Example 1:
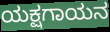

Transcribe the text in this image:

ಯಕ್ಷಗಾಯನ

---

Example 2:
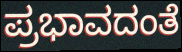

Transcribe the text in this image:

ಪ್ರಭಾವದಂತೆ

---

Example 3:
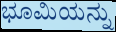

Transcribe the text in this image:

ಭೂಮಿಯನ್ನು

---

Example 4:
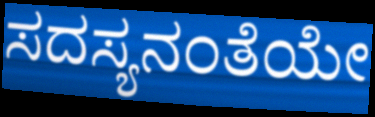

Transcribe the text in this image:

ಸದಸ್ಯನಂತೆಯೇ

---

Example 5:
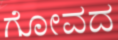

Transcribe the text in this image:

ಗೋವದ